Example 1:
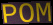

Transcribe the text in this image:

POM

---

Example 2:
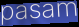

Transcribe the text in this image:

pasam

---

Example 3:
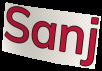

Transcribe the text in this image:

Sanj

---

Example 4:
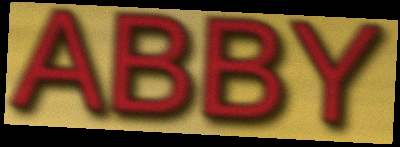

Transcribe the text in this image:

ABBY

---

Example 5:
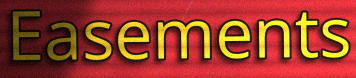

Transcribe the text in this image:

Easements